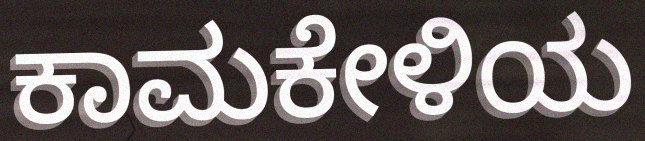
ಕಾಮಕೇಳಿಯ